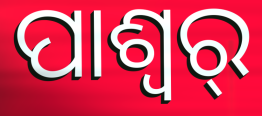
ପାଶ୍ୱର୍